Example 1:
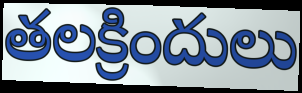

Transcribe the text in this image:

తలక్రిందులు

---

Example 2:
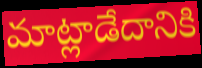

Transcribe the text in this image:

మాట్లాడేదానికి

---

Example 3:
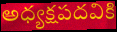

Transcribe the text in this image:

అధ్యక్షపదవికి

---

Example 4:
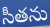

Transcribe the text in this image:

సీతను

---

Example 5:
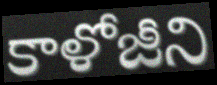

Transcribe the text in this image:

కాళోజీని